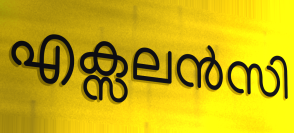
എക്സലൻസി